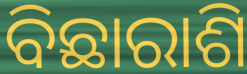
ବିଛାରାଶି